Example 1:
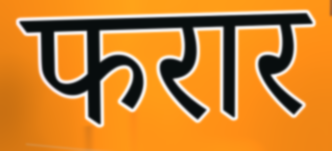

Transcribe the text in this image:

फरार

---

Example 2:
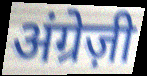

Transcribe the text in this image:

अंग्रेज़ी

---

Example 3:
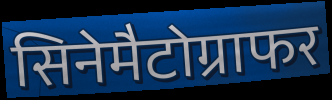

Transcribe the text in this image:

सिनेमैटोग्राफर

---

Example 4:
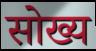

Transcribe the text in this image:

सोख्य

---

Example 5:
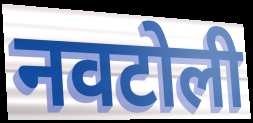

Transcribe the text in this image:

नवटोली